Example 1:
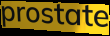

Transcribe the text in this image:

prostate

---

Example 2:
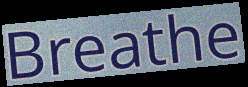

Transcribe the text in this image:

Breathe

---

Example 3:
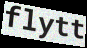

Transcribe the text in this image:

flytt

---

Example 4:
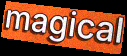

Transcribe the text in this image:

magical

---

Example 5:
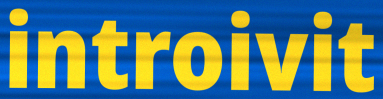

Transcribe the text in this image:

introivit